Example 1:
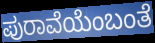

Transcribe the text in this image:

ಪುರಾವೆಯೆಂಬಂತೆ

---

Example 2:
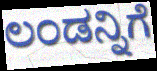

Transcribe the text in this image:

ಲಂಡನ್ನಿಗೆ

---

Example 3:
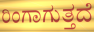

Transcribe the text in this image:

ರಿಂಗಾಗುತ್ತದೆ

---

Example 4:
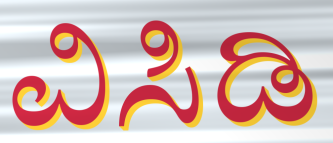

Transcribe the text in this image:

ವಿಸಿಡಿ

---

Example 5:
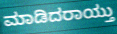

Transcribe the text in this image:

ಮಾಡಿದರಾಯ್ತು